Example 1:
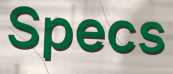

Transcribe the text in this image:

Specs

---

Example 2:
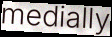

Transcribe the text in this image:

medially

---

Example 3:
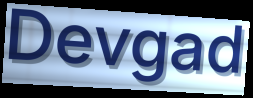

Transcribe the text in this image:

Devgad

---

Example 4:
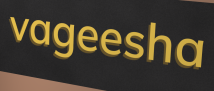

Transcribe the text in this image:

vageesha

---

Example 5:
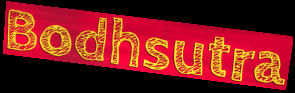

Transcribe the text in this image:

Bodhsutra